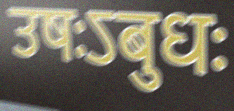
उषःऽबुधः